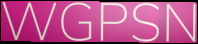
WGPSN